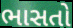
ભાસતો